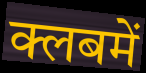
क्लबमें